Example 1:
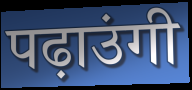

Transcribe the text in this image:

पढ़ाउंगी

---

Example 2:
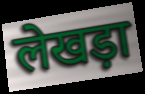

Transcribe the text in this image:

लेखड़ा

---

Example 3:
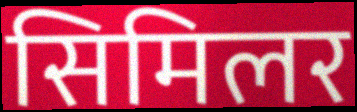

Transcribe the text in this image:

सिमिलर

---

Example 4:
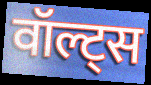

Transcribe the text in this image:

वॉल्ट्स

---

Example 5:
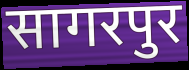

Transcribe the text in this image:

सागरपुर